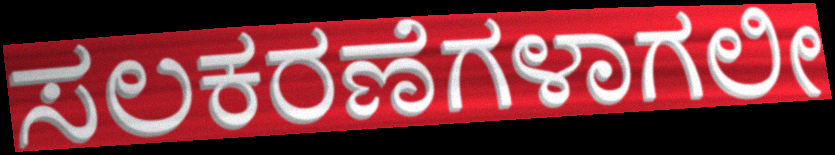
ಸಲಕರಣೆಗಳಾಗಲೀ